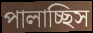
পালাচ্ছিস